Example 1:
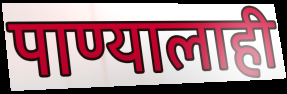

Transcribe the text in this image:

पाण्यालाही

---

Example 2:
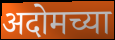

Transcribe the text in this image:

अदोमच्या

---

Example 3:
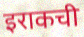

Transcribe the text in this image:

इराकची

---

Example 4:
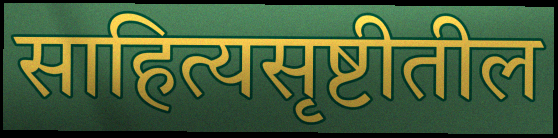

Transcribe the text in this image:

साहित्यसृष्टीतील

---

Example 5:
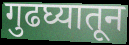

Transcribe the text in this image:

गुढघ्यातून